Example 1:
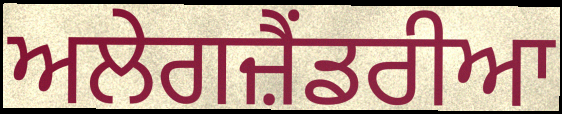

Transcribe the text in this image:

ਅਲੇਗਜ਼ੈਂਡਰੀਆ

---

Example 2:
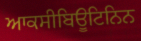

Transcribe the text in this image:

ਆਕਸੀਬਿਊਟਿਨਿਨ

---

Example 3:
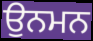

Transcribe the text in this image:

ਉਨਮਨ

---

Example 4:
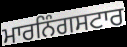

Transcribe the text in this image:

ਮਾਰਨਿੰਗਸਟਾਰ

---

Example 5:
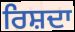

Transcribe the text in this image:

ਰਿਸ਼ਦਾ